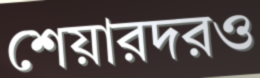
শেয়ারদরও